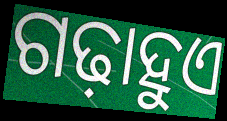
ଗଢ଼ାହୁଏ